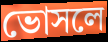
ভোসলে